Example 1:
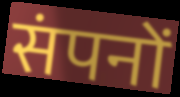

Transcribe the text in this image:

संपनों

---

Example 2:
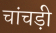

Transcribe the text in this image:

चांचड़ी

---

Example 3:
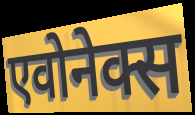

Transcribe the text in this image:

एवोनेक्स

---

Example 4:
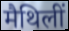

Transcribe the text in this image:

मैथिलीं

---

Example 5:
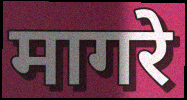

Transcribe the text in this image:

मागरे